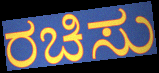
ರಚಿಸು